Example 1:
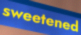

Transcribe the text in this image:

sweetened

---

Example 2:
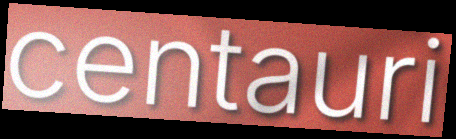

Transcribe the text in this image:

centauri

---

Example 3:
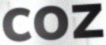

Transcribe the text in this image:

coz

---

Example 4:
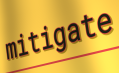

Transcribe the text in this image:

mitigate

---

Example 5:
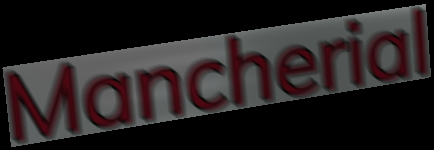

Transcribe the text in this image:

Mancherial